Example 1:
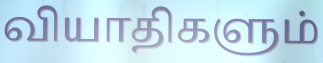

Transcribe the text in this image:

வியாதிகளும்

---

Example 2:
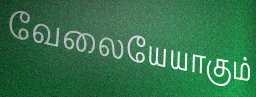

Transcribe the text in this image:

வேலையேயாகும்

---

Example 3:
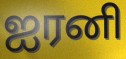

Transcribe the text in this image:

ஐரனி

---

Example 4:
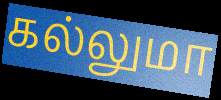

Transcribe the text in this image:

கல்லுமா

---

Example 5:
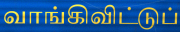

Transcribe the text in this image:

வாங்கிவிட்டுப்